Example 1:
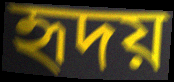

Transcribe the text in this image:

হৃদয়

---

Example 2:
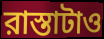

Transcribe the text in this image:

রাস্তাটাও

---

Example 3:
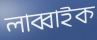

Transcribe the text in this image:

লাব্বাইক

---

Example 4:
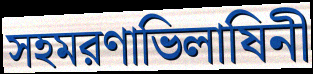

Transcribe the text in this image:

সহমরণাভিলাষিনী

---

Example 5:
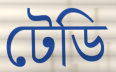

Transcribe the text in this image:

টেডি